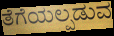
ತೆಗೆಯಲ್ಪಡುವ